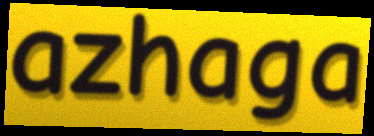
azhaga